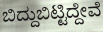
ಬಿದ್ದುಬಿಟ್ಟಿದ್ದೇವೆ